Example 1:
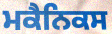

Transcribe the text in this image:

ਮਕੈਨਿਕਸ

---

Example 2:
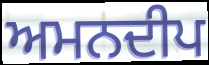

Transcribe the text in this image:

ਅਮਨਦੀਪ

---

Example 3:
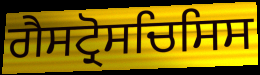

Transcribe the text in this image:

ਗੈਸਟ੍ਰੋਸਚਿਸਿਸ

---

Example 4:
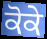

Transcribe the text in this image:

ਕੋਕੇ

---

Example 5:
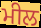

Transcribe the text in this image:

ਮੀਲ